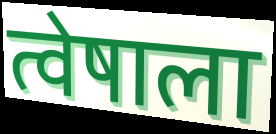
त्वेषाला